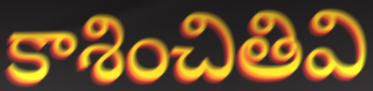
కాశించితివి